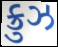
ક્રુઝ